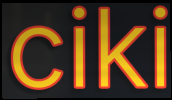
ciki